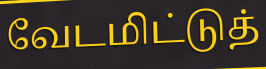
வேடமிட்டுத்